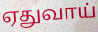
ஏதுவாய்